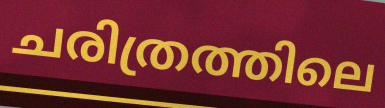
ചരിത്രത്തിലെ